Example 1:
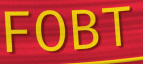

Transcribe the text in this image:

FOBT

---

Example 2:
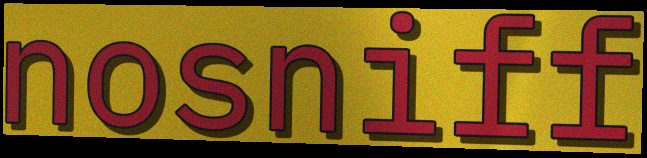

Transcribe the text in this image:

nosniff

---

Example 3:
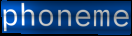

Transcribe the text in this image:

phoneme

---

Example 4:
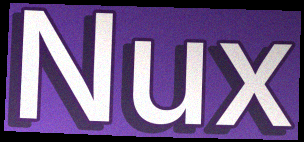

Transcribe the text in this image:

Nux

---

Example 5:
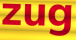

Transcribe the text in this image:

zug